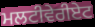
ਮਲਟੀਵੇਰੀਏਟ